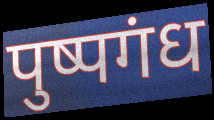
पुष्पगंध